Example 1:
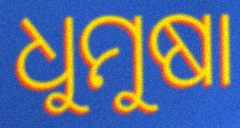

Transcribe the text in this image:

ଧୁମୁଷା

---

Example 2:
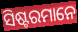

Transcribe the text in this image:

ସିଷ୍ଟରମାନେ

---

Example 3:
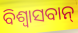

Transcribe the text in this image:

ବିଶ୍ଵାସବାନ୍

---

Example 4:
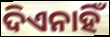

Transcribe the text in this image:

ଦିଏନାହିଁ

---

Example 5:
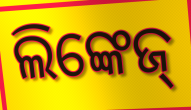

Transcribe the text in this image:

ଲିଙ୍କେଜ୍